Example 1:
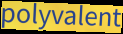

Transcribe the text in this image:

polyvalent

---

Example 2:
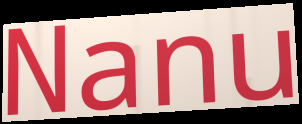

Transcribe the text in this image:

Nanu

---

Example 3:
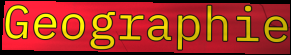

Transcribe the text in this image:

Geographie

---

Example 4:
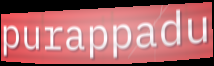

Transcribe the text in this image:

purappadu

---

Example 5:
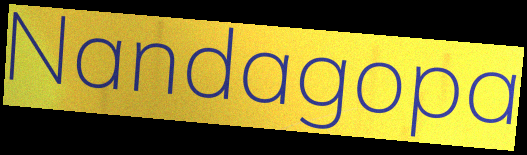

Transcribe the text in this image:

Nandagopa